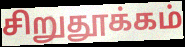
சிறுதூக்கம்